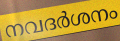
നവദർശനം